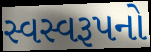
સ્વસ્વરૂપનો